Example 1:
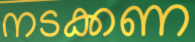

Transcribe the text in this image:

നടക്കണ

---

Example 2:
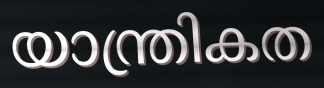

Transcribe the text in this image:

യാന്ത്രികത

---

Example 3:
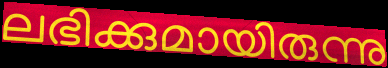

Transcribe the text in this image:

ലഭിക്കുമായിരുന്നു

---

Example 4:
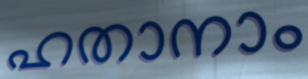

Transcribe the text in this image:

ഹതാനാം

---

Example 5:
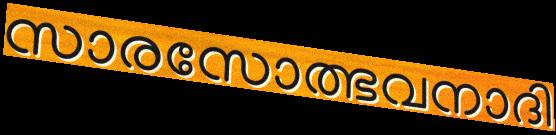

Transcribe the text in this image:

സാരസോത്ഭവനാദി